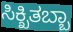
ಸಿಕ್ಖಿತಬ್ಬಾ